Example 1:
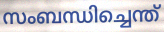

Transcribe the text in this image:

സംബന്ധിച്ചെന്ത്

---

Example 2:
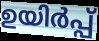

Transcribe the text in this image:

ഉയിർപ്പ്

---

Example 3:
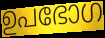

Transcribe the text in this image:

ഉപഭോഗ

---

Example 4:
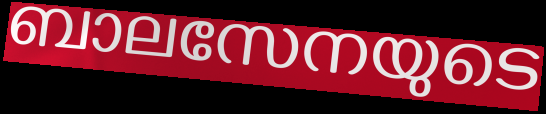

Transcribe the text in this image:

ബാലസേനയുടെ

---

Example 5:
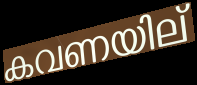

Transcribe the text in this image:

കവണയില്